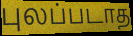
புலப்படாத